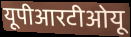
यूपीआरटीओयू